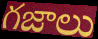
గజాలు